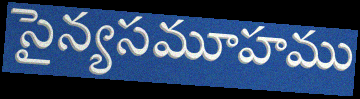
సైన్యసమూహము